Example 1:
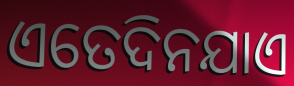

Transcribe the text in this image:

ଏତେଦିନଯାଏ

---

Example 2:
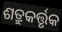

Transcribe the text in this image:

ଶତ୍ରୁକର୍ତ୍ତୃକ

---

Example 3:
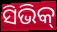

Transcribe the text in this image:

ସିଭିକ୍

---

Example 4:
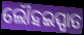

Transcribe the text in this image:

ଲୌହଇସ୍ପାତ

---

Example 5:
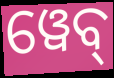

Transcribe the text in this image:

ୱେବ୍